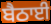
ਬੈਠਾਈ